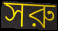
সরু